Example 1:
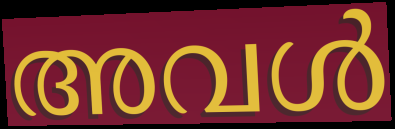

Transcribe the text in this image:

അവൾ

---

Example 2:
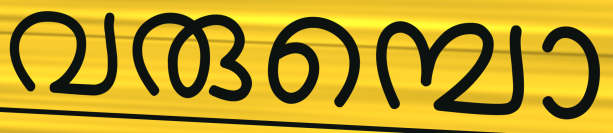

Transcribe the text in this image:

വരുമ്പൊ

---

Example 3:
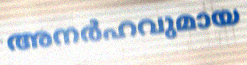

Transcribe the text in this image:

അനർഹവുമായ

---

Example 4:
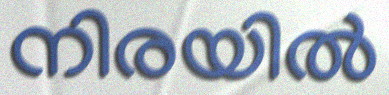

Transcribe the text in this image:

നിരയിൽ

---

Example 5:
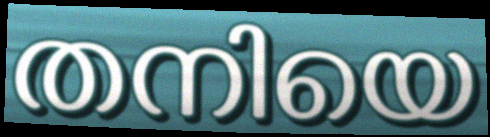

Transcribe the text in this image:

തനിയെ